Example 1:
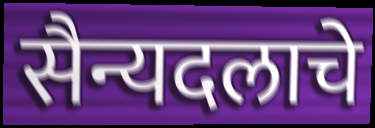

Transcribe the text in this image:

सैन्यदलाचे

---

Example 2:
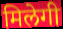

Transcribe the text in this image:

मिलेगी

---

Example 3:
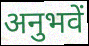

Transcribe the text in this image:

अनुभवें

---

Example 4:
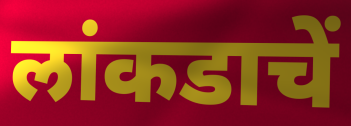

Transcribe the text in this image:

लांकडाचें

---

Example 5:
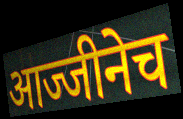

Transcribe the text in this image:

आज्जीनेच